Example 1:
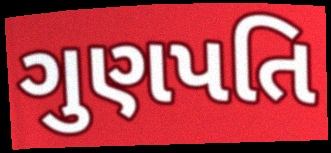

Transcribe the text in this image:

ગુણપતિ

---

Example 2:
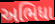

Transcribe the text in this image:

અભિધા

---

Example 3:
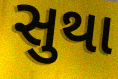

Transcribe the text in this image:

સુથા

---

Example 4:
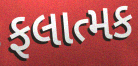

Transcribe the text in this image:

ફલાત્મક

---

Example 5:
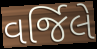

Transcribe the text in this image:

વર્જિલે